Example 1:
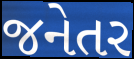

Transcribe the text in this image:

જનેતર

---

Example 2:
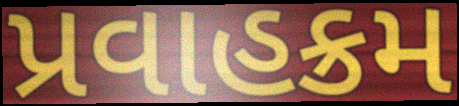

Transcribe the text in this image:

પ્રવાહક્રમ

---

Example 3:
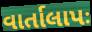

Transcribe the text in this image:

વાર્તાલાપઃ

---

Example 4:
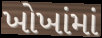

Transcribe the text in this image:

ખોખાંમાં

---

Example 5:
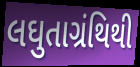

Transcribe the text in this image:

લઘુતાગ્રંથિથી